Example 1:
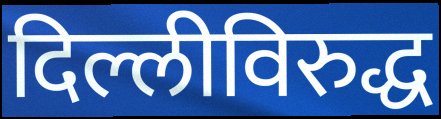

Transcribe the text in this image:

दिल्लीविरुद्ध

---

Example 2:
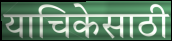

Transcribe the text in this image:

याचिकेसाठी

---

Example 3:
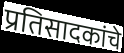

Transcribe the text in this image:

प्रतिसादकांचे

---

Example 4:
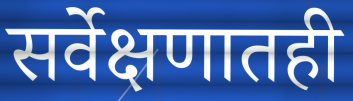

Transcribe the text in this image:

सर्वेक्षणातही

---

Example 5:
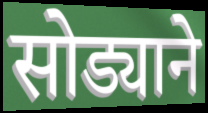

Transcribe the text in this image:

सोड्याने